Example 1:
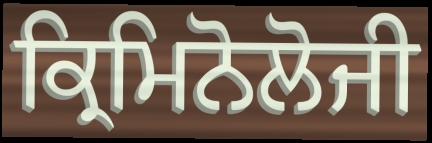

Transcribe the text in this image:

ਕ੍ਰਿਮਿਨੋਲੋਜੀ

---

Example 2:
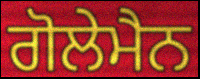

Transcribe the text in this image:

ਗੋਲੇਮੈਨ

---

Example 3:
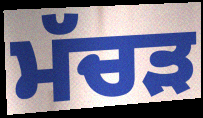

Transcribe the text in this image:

ਮੱਚੜ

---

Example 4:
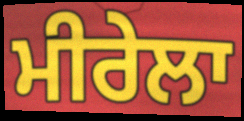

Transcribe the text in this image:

ਮੀਰੇਲਾ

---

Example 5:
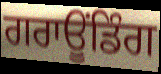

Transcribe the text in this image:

ਗਰਾਊਂਡਿੰਗ